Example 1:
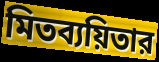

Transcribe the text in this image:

মিতব্যয়িতার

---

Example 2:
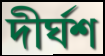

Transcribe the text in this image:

দীর্ঘশ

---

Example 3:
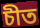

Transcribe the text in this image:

চীত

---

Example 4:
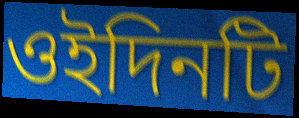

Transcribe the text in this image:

ওইদিনটি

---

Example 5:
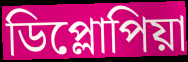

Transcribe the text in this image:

ডিপ্লোপিয়া